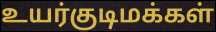
உயர்குடிமக்கள்